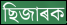
ছিজাৰক